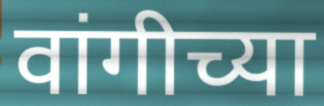
वांगीच्या